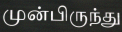
முன்பிருந்து